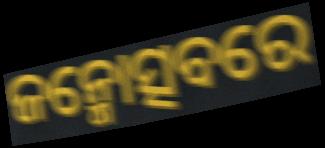
ଜନ୍ମୋତ୍ସବରେ